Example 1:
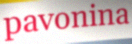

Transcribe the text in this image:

pavonina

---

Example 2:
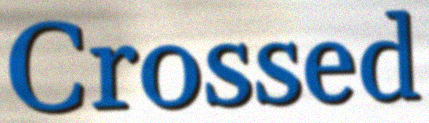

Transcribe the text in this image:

Crossed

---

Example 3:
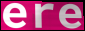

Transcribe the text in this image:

ere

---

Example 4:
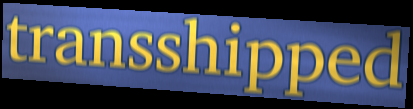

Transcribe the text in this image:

transshipped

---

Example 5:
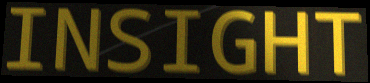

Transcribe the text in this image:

INSIGHT